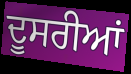
ਦੂਸਰੀਆਂ